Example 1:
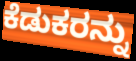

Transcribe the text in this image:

ಕೆಡುಕರನ್ನು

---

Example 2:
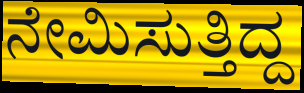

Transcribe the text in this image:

ನೇಮಿಸುತ್ತಿದ್ದ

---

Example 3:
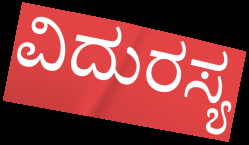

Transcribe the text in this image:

ವಿದುರಸ್ಯ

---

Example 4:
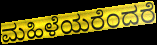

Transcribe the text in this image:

ಮಹಿಳೆಯರೆಂದರೆ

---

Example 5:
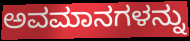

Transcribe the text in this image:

ಅವಮಾನಗಳನ್ನು